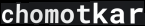
chomotkar